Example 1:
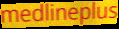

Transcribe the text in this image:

medlineplus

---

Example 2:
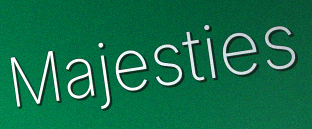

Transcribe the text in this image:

Majesties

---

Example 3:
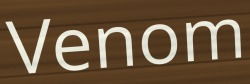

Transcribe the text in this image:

Venom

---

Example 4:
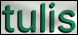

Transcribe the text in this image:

tulis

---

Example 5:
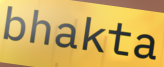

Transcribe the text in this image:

bhakta